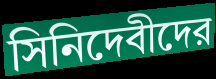
সিনিদেবীদের